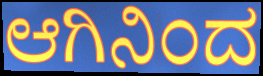
ಆಗಿನಿಂದ